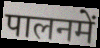
पालनमें